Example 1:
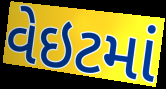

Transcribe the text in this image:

વેઇટમાં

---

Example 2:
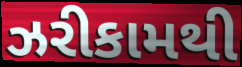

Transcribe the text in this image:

ઝરીકામથી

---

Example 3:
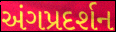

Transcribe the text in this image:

અંગપ્રદર્શન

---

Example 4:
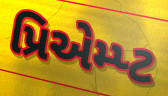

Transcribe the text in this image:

પ્રિએમ્પ્ટ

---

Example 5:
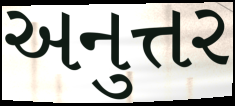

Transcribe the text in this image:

અનુત્તર